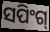
ସପିଂଗ୍